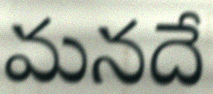
మనదే